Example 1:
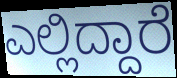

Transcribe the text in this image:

ಎಲ್ಲಿದ್ದಾರೆ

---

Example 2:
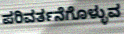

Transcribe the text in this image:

ಪರಿವರ್ತನೆಗೊಳ್ಳುವ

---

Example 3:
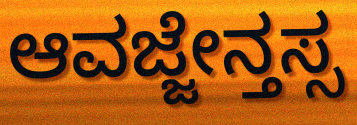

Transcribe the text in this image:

ಆವಜ್ಜೇನ್ತಸ್ಸ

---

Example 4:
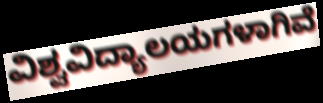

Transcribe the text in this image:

ವಿಶ್ವವಿದ್ಯಾಲಯಗಳಾಗಿವೆ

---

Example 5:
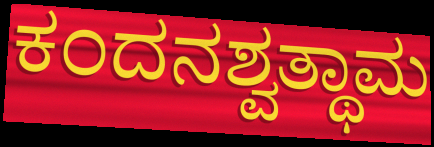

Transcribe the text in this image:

ಕಂದನಶ್ವತ್ಥಾಮ